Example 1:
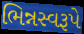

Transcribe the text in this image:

ભિન્નસ્વરૂપે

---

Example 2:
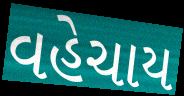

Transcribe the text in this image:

વહેચાય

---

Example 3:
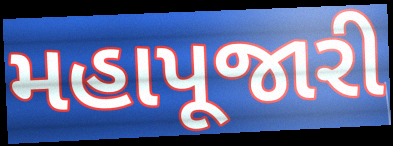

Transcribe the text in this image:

મહાપૂજારી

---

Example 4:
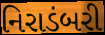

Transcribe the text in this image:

નિરાડંબરી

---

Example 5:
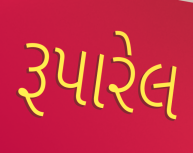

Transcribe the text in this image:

રૂપારેલ